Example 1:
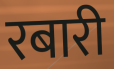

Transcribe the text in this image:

रबारी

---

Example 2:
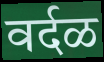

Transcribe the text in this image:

वर्दळ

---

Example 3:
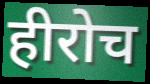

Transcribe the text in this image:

हीरोच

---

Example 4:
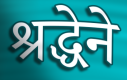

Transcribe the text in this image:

श्रद्धेने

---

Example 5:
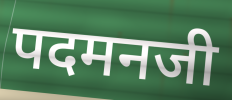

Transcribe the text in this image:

पदमनजी